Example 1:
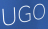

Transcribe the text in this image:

UGO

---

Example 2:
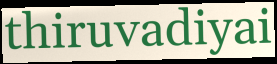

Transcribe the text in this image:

thiruvadiyai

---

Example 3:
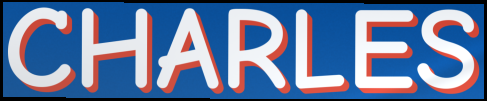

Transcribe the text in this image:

CHARLES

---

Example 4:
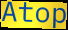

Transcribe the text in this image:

Atop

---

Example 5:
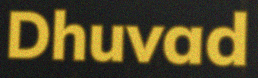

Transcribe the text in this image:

Dhuvad